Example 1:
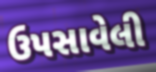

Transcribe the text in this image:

ઉપસાવેલી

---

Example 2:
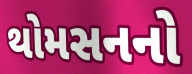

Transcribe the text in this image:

થોમસનનો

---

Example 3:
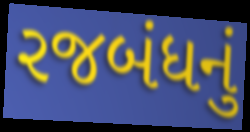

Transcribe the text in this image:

રજબંધનું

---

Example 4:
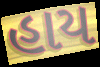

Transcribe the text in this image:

હાય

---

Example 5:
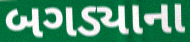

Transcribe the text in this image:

બગડ્યાના